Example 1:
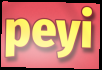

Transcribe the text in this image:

peyi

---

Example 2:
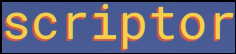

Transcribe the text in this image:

scriptor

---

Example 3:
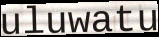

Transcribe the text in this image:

uluwatu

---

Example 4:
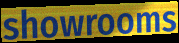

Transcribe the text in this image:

showrooms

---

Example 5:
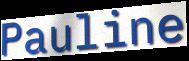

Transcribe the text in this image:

Pauline